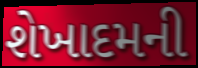
શેખાદમની